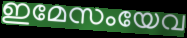
ഇമേസംയേവ